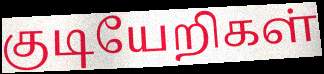
குடியேறிகள்